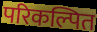
परिकल्पित